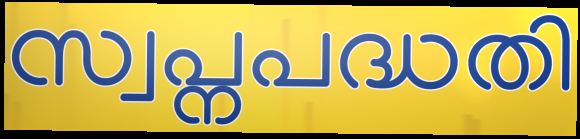
സ്വപ്നപദ്ധതി